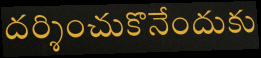
దర్శించుకొనేందుకు